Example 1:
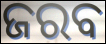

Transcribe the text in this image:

ଜରବ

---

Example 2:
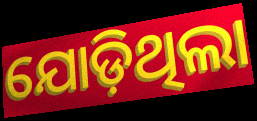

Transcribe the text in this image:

ଯୋଡ଼ିଥିଲା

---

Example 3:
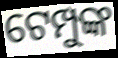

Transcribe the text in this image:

ଟେମ୍ପୁଙ୍କ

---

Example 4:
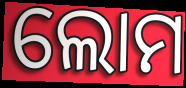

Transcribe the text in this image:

ଲୋମ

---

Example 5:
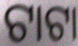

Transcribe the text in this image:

ଟାଟା